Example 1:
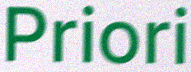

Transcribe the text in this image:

Priori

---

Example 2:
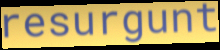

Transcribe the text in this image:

resurgunt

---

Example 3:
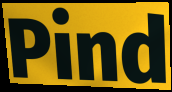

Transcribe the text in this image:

Pind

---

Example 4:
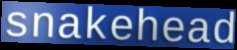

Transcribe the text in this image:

snakehead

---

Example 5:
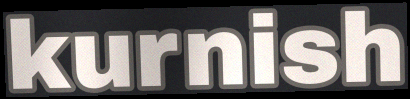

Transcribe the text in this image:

kurnish